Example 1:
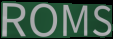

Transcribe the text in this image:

ROMS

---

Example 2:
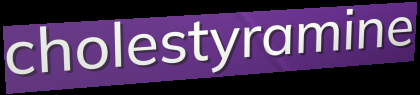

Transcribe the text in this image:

cholestyramine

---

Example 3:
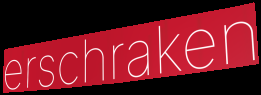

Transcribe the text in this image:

erschraken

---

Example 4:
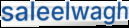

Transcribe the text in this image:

saleelwagh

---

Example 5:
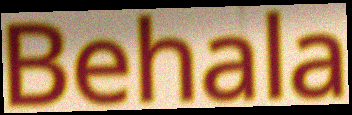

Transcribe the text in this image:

Behala